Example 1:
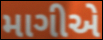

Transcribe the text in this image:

માગીએ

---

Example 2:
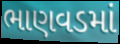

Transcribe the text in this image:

ભાણવડમાં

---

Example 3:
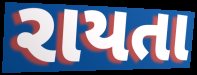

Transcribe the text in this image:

રાયતા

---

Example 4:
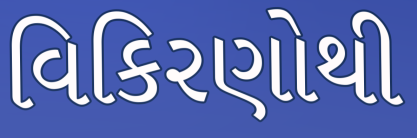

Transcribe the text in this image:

વિકિરણોથી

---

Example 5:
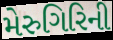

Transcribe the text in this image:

મેરુગિરિની